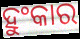
ହୁଂକାର